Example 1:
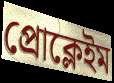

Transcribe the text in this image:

প্রোক্লেইম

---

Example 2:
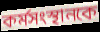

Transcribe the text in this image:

কর্মসংস্থানকে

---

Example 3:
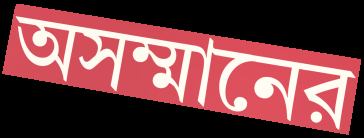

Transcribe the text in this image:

অসম্মানের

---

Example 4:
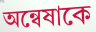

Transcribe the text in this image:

অন্বেষাকে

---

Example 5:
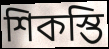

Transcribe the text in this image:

শিকস্তি